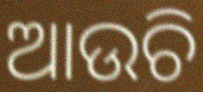
ଆଉଚି